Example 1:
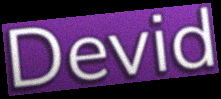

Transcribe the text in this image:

Devid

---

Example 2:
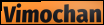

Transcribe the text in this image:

Vimochan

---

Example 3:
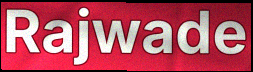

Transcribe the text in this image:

Rajwade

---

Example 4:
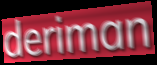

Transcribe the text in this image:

deriman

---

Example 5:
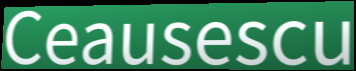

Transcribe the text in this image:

Ceausescu